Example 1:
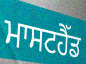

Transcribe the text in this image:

ਮਾਸਟਹੈੱਡ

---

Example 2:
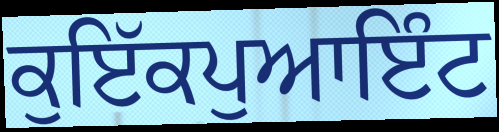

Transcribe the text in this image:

ਕੁਇੱਕਪੁਆਇੰਟ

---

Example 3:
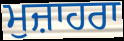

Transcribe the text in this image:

ਮੁਜ਼ਾਹਰਾ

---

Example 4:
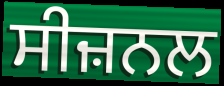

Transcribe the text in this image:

ਸੀਜ਼ਨਲ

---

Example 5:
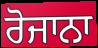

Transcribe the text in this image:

ਰੋਜਾਨਾ